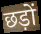
छड़ों